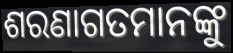
ଶରଣାଗତମାନଙ୍କୁ